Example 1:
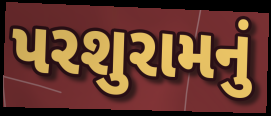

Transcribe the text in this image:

પરશુરામનું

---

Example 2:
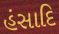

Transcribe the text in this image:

હંસાદિ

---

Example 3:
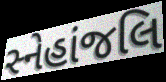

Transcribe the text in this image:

સ્નેહાંજલિ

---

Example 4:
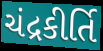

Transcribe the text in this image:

ચંદ્રકીર્તિ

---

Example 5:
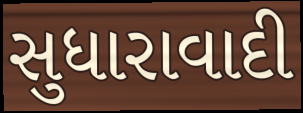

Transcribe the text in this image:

સુધારાવાદી